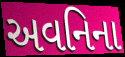
અવનિના